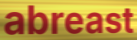
abreast